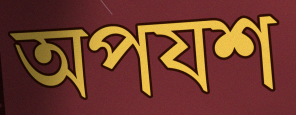
অপযশ